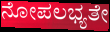
ನೋಪಲಭ್ಯತೇ